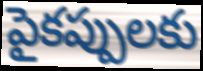
పైకప్పులకు